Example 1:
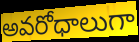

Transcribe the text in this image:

అవరోధాలుగా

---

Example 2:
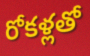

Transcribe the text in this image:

రోకళ్లతో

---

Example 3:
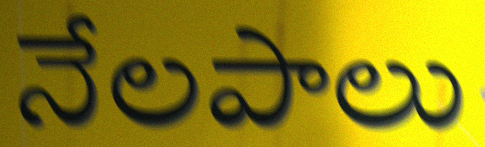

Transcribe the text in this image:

నేలపాలు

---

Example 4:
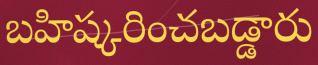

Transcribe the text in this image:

బహిష్కరించబడ్డారు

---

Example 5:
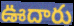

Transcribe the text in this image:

ఊదారు